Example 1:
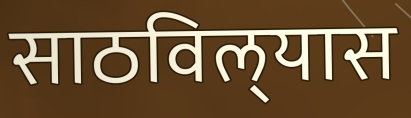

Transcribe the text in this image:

साठविल्यास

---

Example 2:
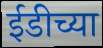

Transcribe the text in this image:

ईडीच्या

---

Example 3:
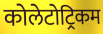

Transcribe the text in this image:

कोलेटोट्रिकम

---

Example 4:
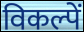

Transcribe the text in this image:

विकल्पें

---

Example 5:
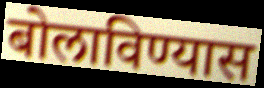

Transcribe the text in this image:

बोलाविण्यास